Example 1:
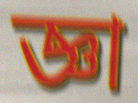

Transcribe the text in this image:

জ্ঞা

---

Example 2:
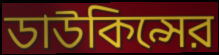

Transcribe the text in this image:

ডাউকিন্সের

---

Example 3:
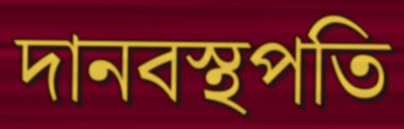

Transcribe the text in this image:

দানবস্থপতি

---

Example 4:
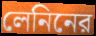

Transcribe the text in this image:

লেনিনের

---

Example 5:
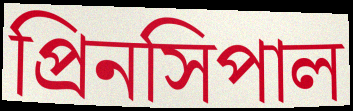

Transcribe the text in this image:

প্রিনসিপাল